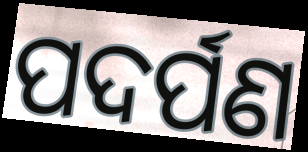
ପଦର୍ପଣ